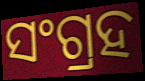
ସଂଗ୍ରହ